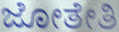
ಜೋತೇತಿ